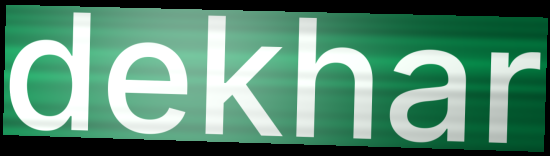
dekhar